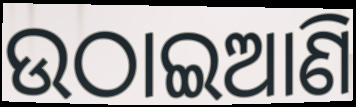
ଉଠାଇଆଣି